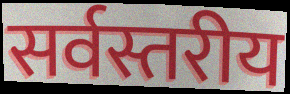
सर्वस्तरीय